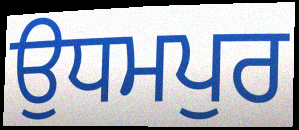
ਉਧਮਪੁਰ